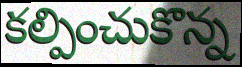
కల్పించుకొన్న